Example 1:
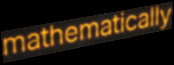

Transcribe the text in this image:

mathematically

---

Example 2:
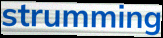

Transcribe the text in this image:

strumming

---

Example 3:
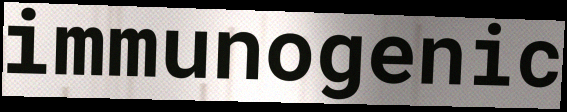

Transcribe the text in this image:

immunogenic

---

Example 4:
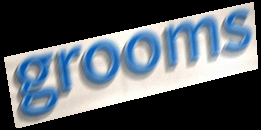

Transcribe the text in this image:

grooms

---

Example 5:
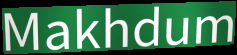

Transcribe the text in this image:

Makhdum